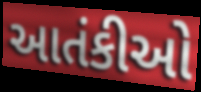
આતંકીઓ